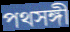
পথসঙ্গী